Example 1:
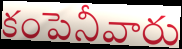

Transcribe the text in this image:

కంపెనీవారు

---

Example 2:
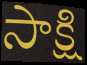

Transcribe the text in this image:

సాక్షి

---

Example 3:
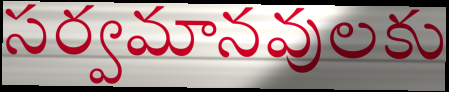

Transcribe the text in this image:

సర్వమానవులకు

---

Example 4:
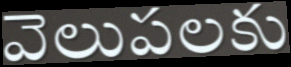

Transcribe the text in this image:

వెలుపలకు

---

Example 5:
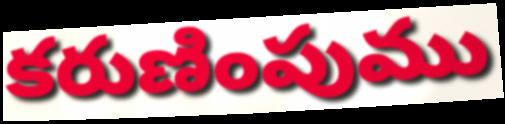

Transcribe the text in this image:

కరుణింపుము